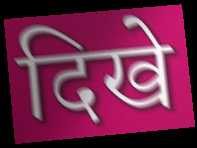
दिखे